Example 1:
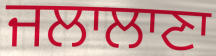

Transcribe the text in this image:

ਜਲਾਲਾਣਾ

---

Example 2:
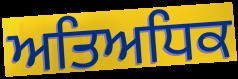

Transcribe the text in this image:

ਅਤਿਅਧਿਕ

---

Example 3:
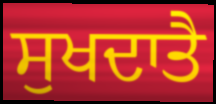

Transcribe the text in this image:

ਸੁਖਦਾਤੈ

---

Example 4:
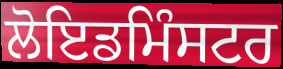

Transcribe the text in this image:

ਲੋਇਡਮਿੰਸਟਰ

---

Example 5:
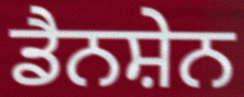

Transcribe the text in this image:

ਡੈਨਸ਼ੇਨ